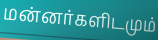
மன்னர்களிடமும்